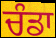
ਚੰਡਾ